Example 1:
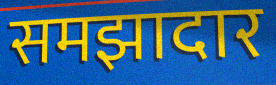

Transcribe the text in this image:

समझादार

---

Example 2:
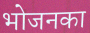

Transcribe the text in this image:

भोजनका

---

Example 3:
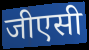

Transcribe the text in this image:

जीएसी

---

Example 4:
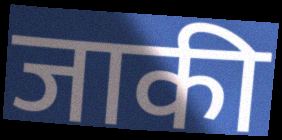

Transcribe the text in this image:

जाकी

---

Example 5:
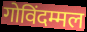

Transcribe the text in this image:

गोविंदम्मल